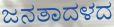
ಜನತಾದಳದ